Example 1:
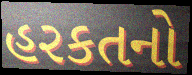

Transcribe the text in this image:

હરકતનો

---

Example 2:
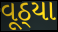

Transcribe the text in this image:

વૂઠ્યા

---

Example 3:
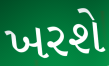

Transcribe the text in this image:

ખરશે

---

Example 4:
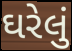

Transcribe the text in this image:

ઘરેલું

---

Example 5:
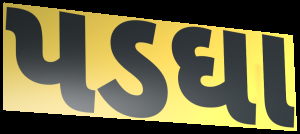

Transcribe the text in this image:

પડઘા